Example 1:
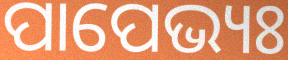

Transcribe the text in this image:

ପାପେଭ୍ୟଃ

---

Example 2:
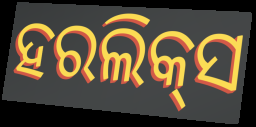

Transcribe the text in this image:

ହରଲିକ୍‌ସ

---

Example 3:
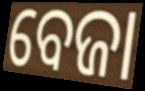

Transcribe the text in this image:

ବେଜା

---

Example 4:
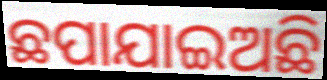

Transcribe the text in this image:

ଛପାଯାଇଅଛି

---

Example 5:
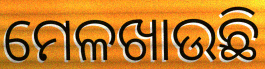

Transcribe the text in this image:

ମେଳଖାଉଛି